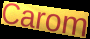
Carom